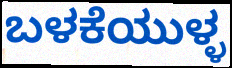
ಬಳಕೆಯುಳ್ಳ